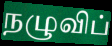
நழுவிப்